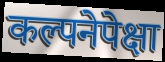
कल्पनेपेक्षा